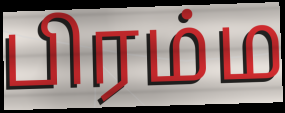
பிரம்ம